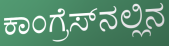
ಕಾಂಗ್ರೆಸ್‌ನಲ್ಲಿನ